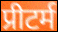
प्रीटर्म